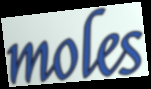
moles